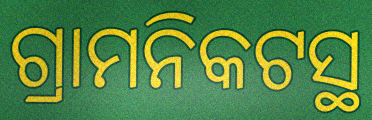
ଗ୍ରାମନିକଟସ୍ଥ